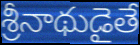
శ్రీనాథుడైతే